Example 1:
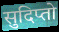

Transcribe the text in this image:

सुदिप्तो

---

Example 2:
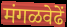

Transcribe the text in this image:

मंगळवेढें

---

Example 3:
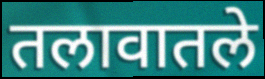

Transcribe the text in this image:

तलावातले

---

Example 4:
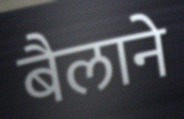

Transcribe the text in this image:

बैलाने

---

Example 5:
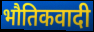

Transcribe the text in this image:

भौतिकवादी